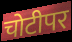
चोटीपर